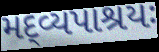
મદ્વ્યપાશ્રયઃ